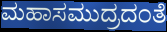
ಮಹಾಸಮುದ್ರದಂತೆ